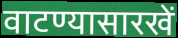
वाटण्यासारखें